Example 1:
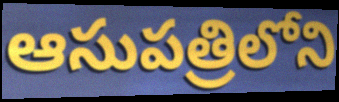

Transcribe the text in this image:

ఆసుపత్రిలోని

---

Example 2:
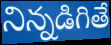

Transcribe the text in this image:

నిన్నడిగితే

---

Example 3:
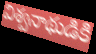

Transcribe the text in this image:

విశ్వనాథుడికి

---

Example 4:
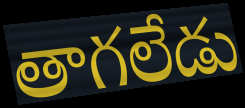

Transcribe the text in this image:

తాగలేడు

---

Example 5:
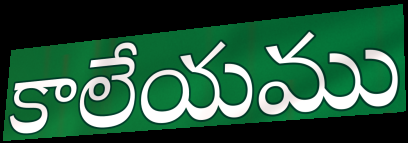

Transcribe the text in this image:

కాలేయము